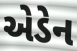
એડેન